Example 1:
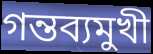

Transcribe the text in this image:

গন্তব্যমুখী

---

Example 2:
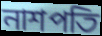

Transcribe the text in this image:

নাশপতি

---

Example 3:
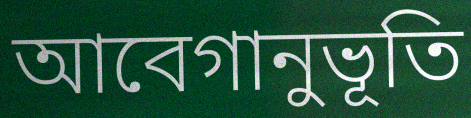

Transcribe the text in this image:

আবেগানুভূতি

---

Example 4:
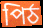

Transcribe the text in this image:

পিঠ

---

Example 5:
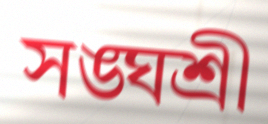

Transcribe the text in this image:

সঙ্ঘশ্রী